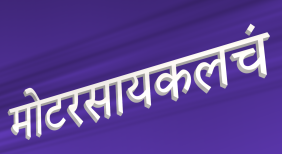
मोटरसायकलचं